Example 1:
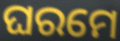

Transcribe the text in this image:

ଘରମେ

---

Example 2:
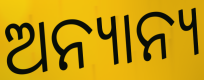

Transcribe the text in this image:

ଅନ୍ଯାନ୍ଯ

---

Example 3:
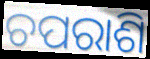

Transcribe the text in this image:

ଚପରାଶି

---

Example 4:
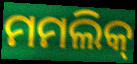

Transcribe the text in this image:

ମମଲିକ୍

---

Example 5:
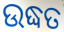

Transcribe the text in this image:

ଉଦ୍ଧତ